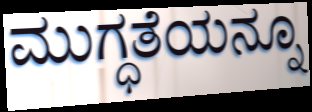
ಮುಗ್ಧತೆಯನ್ನೂ